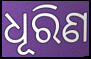
ଧୂରିଣ